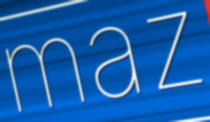
maz